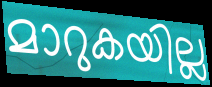
മാറുകയില്ല